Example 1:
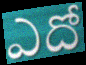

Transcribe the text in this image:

ఎదో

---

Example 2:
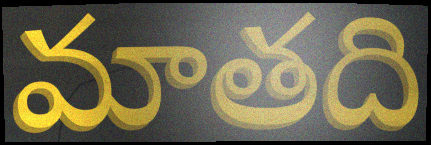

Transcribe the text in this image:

మాతది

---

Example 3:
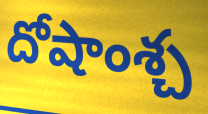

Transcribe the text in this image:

దోషాంశ్చ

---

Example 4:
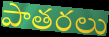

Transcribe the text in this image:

పాతరలు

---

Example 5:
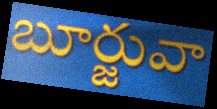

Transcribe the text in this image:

బూర్జువా